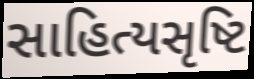
સાહિત્યસૃષ્ટિ